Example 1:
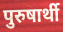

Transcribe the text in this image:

पुरुषार्थी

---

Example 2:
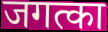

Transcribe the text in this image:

जगत्का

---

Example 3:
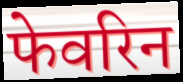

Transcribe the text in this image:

फेवरिन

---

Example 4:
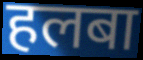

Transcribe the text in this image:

हलबा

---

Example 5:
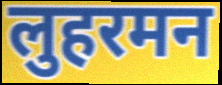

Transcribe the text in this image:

लुहरमन